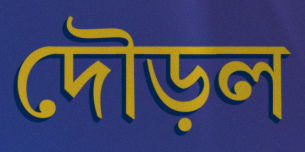
দৌড়ল